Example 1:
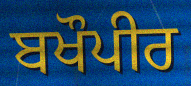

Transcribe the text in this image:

ਬਖੌਪੀਰ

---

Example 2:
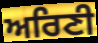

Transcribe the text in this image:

ਅਰਿਣੀ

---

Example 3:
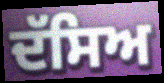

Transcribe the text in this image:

ਦੱਸਿਅ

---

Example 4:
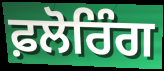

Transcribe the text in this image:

ਫ਼ਲੋਰਿੰਗ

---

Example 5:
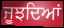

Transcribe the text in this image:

ਜੂਝਦਿਆਂ